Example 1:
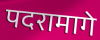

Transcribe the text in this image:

पदरामागे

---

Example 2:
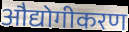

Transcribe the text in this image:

औद्योगीकरण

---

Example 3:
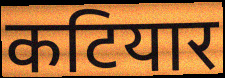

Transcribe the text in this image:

कटियार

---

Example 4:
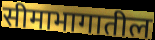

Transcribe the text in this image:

सीमाभागातील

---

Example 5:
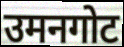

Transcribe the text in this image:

उमनगोट